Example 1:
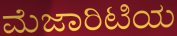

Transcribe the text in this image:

ಮೆಜಾರಿಟಿಯ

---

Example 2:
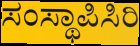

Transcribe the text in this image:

ಸಂಸ್ಥಾಪಿಸಿರಿ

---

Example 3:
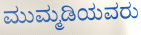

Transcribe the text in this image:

ಮುಮ್ಮಡಿಯವರು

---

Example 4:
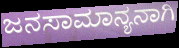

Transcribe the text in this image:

ಜನಸಾಮಾನ್ಯನಾಗಿ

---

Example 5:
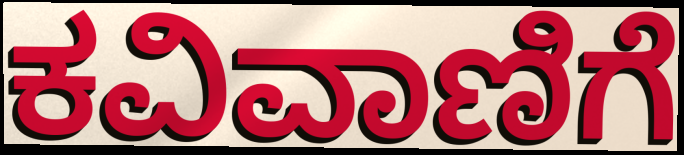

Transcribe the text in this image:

ಕವಿವಾಣಿಗೆ